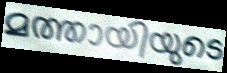
മത്തായിയുടെ